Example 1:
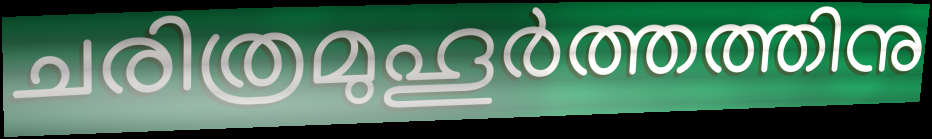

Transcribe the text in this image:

ചരിത്രമുഹൂർത്തത്തിനു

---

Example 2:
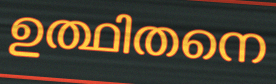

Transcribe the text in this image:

ഉത്ഥിതനെ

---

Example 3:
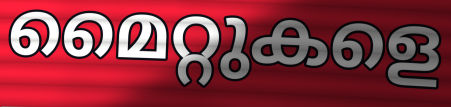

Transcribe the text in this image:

മൈറ്റുകളെ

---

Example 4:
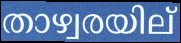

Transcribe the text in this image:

താഴ്വരയില്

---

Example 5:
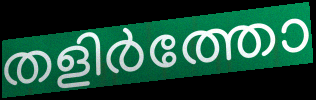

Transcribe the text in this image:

തളിർത്തോ